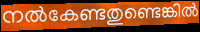
നൽകേണ്ടതുണ്ടെങ്കിൽ